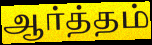
ஆர்த்தம்